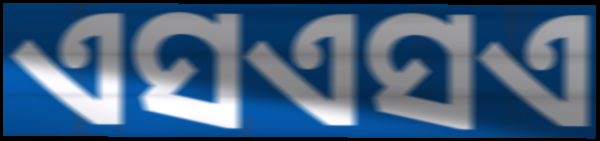
ଏସଏସଏ